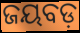
ଜୟବଡ଼